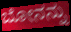
ಬೋನನ್ನು